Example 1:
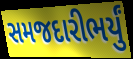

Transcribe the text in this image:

સમજદારીભર્યું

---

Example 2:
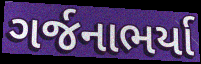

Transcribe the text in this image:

ગર્જનાભર્યા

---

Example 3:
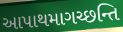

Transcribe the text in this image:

આપાથમાગચ્છન્તિ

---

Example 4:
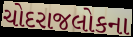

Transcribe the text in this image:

ચોદરાજલોકના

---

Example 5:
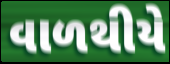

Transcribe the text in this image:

વાળથીયે